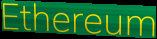
Ethereum